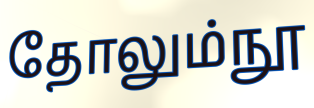
தோலும்நூ